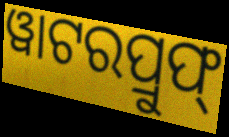
ୱାଟରପ୍ରୁଫ୍